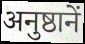
अनुष्ठानें